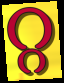
റ്റ